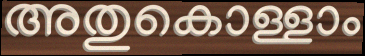
അതുകൊള്ളാം